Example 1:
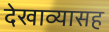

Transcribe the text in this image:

देखाव्यासह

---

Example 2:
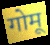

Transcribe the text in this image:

गोमू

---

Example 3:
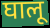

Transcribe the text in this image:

घालू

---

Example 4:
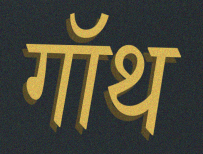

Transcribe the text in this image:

गॉथ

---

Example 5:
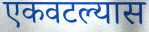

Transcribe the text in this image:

एकवटल्यास